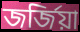
জৰ্জিয়া